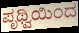
ಪೃಥ್ವಿಯಿಂದ